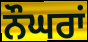
ਨੌਘਰਾਂ